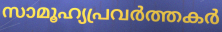
സാമൂഹ്യപ്രവർത്തകർ